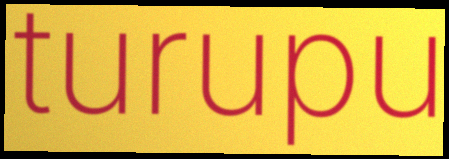
turupu